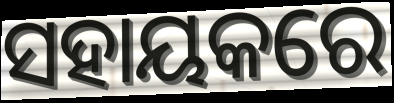
ସହାୟକରେ